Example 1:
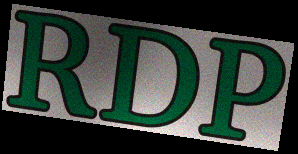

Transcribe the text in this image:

RDP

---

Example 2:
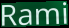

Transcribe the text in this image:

Rami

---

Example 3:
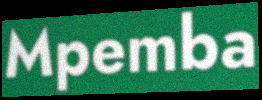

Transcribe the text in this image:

Mpemba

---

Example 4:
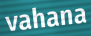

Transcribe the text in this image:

vahana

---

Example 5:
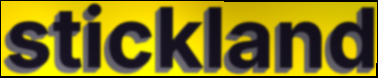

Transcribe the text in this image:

stickland